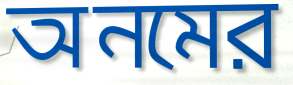
অনমের